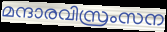
മന്ദാരവിസ്രംസന